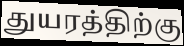
துயரத்திற்கு